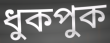
ধুকপুক